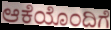
ಆಕೆಯೊಂದಿಗೆ